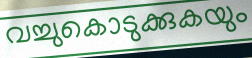
വച്ചുകൊടുക്കുകയും